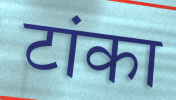
टांका